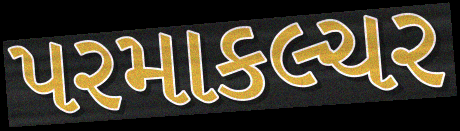
પરમાકલ્ચર